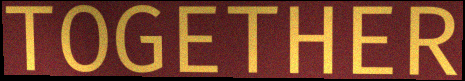
TOGETHER